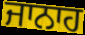
ਜਾਨਾਹ